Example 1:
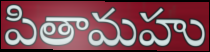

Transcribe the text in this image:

పితామహు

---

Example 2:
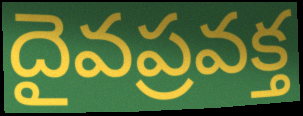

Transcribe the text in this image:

దైవప్రవక్త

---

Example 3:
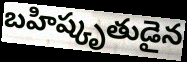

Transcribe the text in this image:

బహిష్కృతుడైన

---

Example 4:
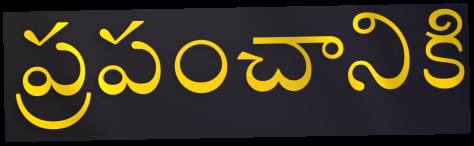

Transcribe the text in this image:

ప్రపంచానికి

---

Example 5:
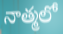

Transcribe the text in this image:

నాత్మలో